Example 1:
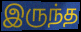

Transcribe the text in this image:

இருந்த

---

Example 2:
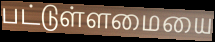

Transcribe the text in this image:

பட்டுள்ளமையை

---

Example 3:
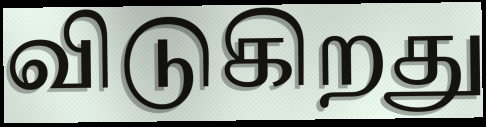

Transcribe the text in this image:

விடுகிறது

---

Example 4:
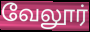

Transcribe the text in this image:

வேலூர்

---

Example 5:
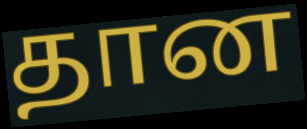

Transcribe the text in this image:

தான